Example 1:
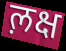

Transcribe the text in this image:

ल़क्ष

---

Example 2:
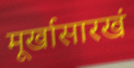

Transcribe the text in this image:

मूर्खासारखं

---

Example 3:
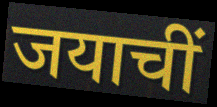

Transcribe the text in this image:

जयाचीं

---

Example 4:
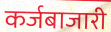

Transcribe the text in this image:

कर्जबाजारी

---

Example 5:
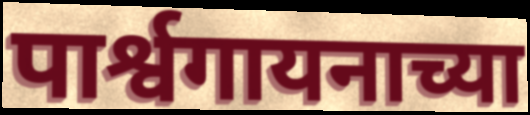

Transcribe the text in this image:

पार्श्वगायनाच्या